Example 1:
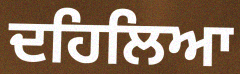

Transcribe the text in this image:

ਦਹਿਲਿਆ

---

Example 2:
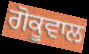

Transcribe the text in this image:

ਗੋਕੂਵਾਲ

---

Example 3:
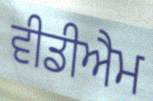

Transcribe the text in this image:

ਵੀਡੀਐਮ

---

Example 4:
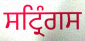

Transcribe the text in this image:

ਸਟ੍ਰਿੰਗਸ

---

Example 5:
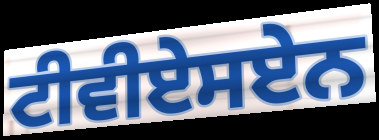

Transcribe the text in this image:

ਟੀਵੀਏਸਏਨ